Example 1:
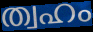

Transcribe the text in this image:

ത്വഹം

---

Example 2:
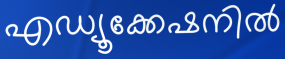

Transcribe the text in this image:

എഡ്യൂക്കേഷനിൽ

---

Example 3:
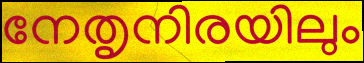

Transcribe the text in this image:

നേതൃനിരയിലും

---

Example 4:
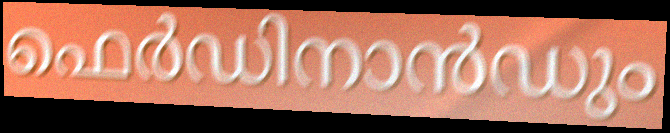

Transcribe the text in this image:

ഫെർഡിനാൻഡും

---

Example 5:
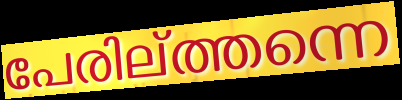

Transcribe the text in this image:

പേരില്ത്തന്നെ